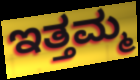
ಇತ್ತಮ್ಮ